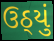
ઉઠ્યું